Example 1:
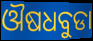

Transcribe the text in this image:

ଔଷଧବୁଡା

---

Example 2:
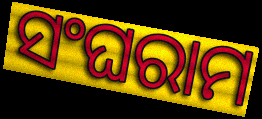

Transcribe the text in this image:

ସଂଘରାମ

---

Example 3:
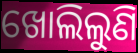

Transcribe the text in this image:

ଖୋଲିଲୁଣି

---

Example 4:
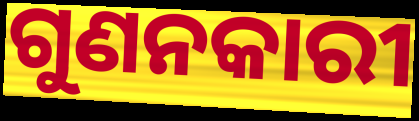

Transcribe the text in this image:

ଗୁଣନକାରୀ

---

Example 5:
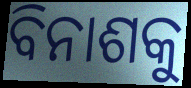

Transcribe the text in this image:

ବିନାଶକୁ